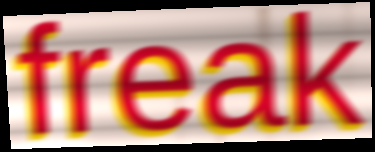
freak